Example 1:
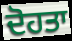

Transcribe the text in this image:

ਦੋਹਤਾ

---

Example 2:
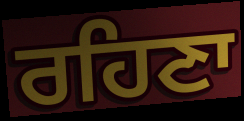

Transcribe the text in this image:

ਰਹਿਣਾ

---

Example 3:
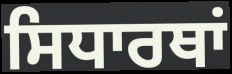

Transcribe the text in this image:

ਸਿਧਾਰਥਾਂ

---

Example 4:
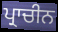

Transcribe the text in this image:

ਪ੍ਰਾਚੀਨ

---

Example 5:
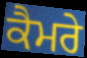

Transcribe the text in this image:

ਕੈਮਰੇ